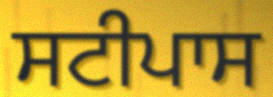
ਸਟੀਪਾਸ